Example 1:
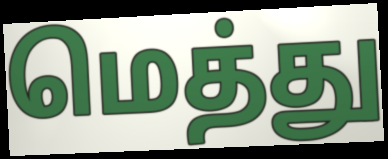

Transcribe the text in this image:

மெத்து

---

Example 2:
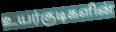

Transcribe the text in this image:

உயர்குடிகளின்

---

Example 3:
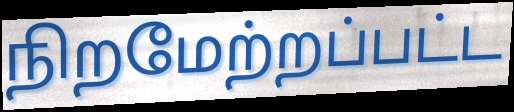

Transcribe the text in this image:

நிறமேற்றப்பட்ட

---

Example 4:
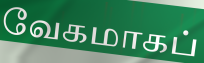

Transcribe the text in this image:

வேகமாகப்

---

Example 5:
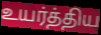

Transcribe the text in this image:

உயர்த்திய